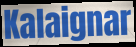
Kalaignar